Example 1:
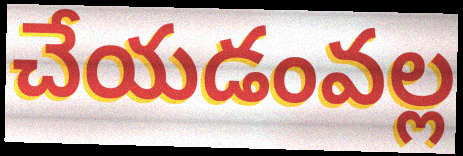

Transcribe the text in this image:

చేయడంవల్ల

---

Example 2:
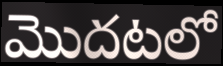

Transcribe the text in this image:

మొదటలో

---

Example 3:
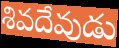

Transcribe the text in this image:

శివదేవుడు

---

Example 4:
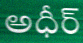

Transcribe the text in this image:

అధీర్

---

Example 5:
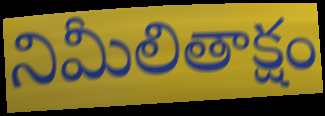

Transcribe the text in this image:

నిమీలితాక్షం